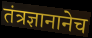
तंत्रज्ञानानेच